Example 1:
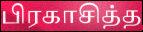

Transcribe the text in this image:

பிரகாசித்த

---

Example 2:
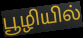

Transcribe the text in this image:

பூழியில்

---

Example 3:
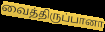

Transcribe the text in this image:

வைத்திருப்பானா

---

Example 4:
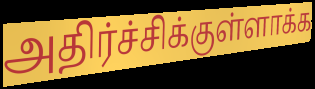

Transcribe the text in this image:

அதிர்ச்சிக்குள்ளாக்க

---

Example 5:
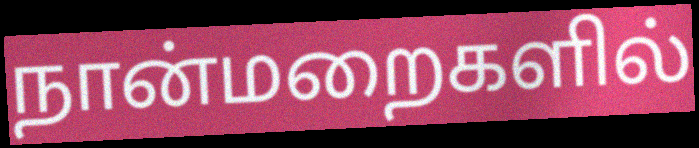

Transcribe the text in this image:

நான்மறைகளில்